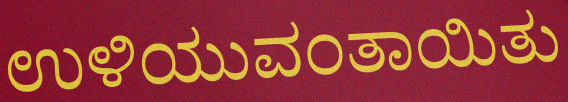
ಉಳಿಯುವಂತಾಯಿತು